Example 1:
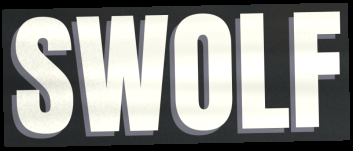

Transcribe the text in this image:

SWOLF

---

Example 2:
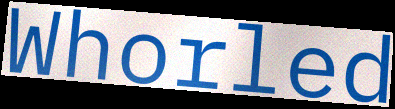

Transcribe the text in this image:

Whorled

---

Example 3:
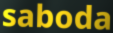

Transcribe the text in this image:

saboda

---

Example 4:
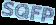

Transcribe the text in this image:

SQFP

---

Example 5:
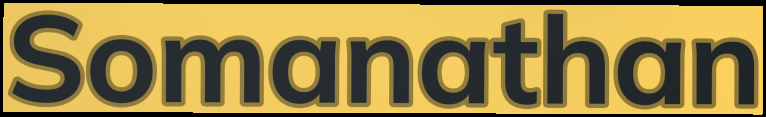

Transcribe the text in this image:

Somanathan